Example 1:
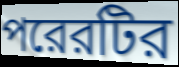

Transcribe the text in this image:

পরেরটির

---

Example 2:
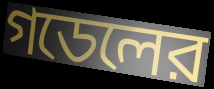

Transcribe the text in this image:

গডেলের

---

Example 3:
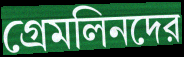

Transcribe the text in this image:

গ্রেমলিনদের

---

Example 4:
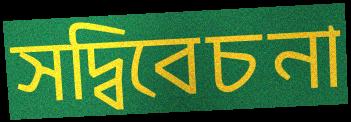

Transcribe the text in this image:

সদ্বিবেচনা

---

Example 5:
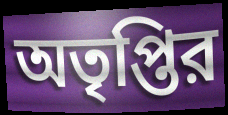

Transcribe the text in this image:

অতৃপ্তির